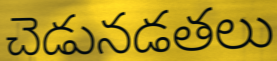
చెడునడతలు